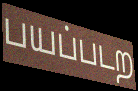
பயப்படற